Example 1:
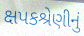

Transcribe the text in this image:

ક્ષપકશ્રેણીનું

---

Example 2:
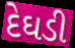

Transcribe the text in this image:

દેઘડી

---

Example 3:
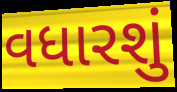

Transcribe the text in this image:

વધારશું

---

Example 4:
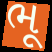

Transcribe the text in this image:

ભૂ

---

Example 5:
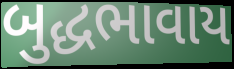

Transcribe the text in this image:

બુદ્ધભાવાય